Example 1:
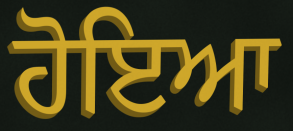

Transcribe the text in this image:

ਹੋਇਆ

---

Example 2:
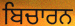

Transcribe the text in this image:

ਬਿਚਾਰਨ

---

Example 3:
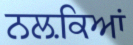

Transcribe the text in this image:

ਨਲ਼ਕਿਆਂ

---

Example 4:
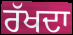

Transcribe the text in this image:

ਰੱਖਦਾ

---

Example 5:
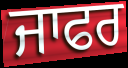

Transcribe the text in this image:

ਜਾਫਰ